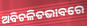
ଅବିଚଳିତଭାବରେ